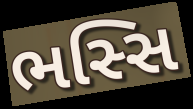
ભસ્સિ